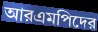
আরএমপিদের